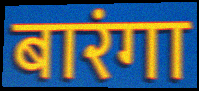
बारंगा